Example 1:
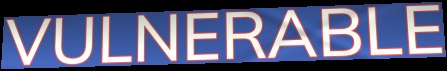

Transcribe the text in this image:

VULNERABLE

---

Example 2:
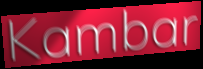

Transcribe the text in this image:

Kambar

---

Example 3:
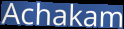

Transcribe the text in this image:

Achakam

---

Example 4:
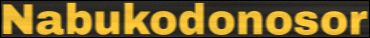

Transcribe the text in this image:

Nabukodonosor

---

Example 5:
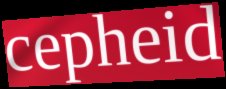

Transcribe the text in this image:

cepheid